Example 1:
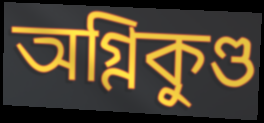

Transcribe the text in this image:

অগ্নিকুণ্ড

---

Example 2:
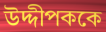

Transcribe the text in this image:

উদ্দীপককে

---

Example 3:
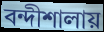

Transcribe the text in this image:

বন্দীশালায়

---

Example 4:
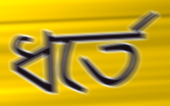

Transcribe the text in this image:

ধর্তে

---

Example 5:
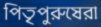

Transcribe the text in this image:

পিতৃপুরুষেরা